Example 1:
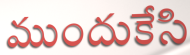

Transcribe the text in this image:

ముందుకేసి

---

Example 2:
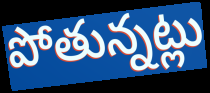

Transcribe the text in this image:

పోతున్నట్లు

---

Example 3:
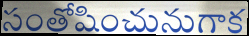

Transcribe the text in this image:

సంతోషించునుగాక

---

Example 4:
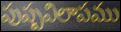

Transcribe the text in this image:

పుష్పవిలాపము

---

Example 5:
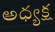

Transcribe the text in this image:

అధ్యక్ష